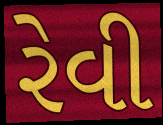
રેવી